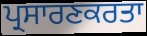
ਪ੍ਰਸਾਰਣਕਰਤਾ